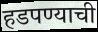
हडपण्याची